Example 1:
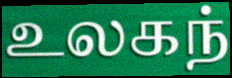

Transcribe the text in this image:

உலகந்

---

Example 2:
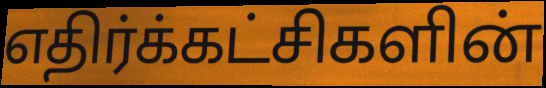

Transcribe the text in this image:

எதிர்க்கட்சிகளின்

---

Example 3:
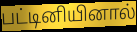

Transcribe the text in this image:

பட்டினியினால்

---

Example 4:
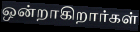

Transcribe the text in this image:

ஒன்றாகிறார்கள்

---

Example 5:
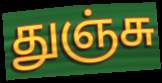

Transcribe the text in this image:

துஞ்சு